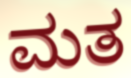
ಮತ